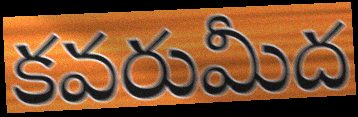
కవరుమీద